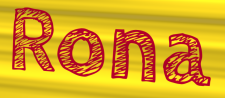
Rona